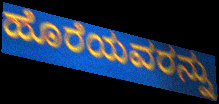
ಹೊರೆಯವರನ್ನು